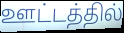
ஊட்டத்தில்